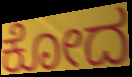
ಕೋದ